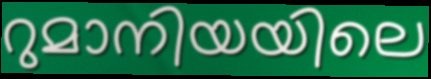
റുമാനിയയിലെ